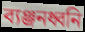
ব্যঞ্জনধ্বনি